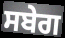
ਸਬੇਗ